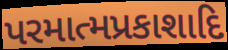
પરમાત્મપ્રકાશાદિ